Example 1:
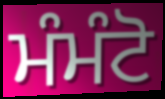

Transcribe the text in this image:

ਮੰਮੰਟੋ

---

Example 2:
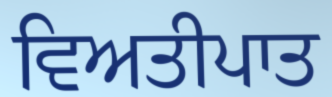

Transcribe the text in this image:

ਵਿਅਤੀਪਾਤ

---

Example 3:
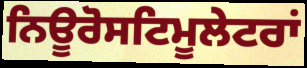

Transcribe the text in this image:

ਨਿਊਰੋਸਟਿਮੂਲੇਟਰਾਂ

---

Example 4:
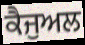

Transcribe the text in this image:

ਕੈਜੁਅਲ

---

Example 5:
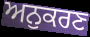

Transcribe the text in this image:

ਅਨੁਕਰਣ